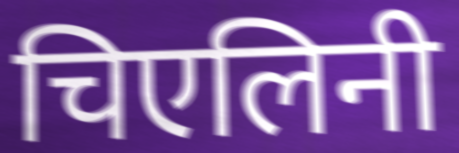
चिएलिनी